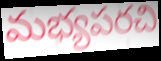
మభ్యపరచి